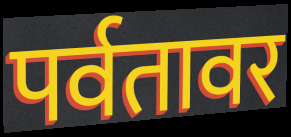
पर्वतावर